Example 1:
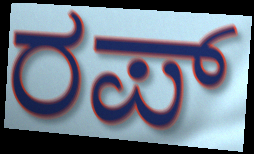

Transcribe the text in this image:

ರಪ್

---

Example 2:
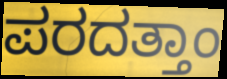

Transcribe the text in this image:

ಪರದತ್ತಾಂ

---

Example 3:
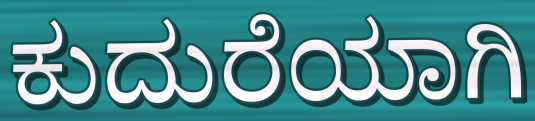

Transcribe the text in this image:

ಕುದುರೆಯಾಗಿ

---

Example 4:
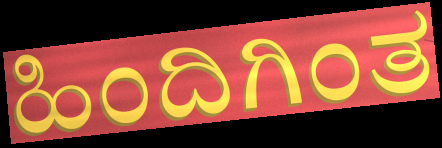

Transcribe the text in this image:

ಹಿಂದಿಗಿಂತ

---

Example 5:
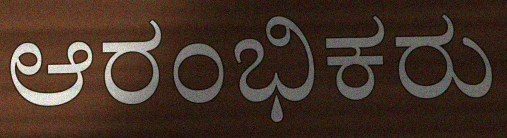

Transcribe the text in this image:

ಆರಂಭಿಕರು